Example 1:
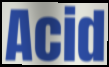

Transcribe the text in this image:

Acid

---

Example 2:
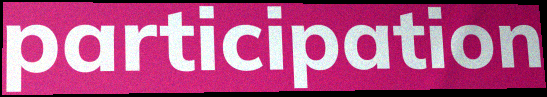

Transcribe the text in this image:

participation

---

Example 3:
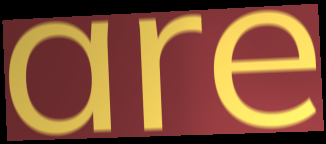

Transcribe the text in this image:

are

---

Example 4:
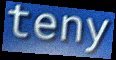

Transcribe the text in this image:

teny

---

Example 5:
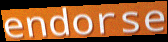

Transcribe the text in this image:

endorse